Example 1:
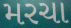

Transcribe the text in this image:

મરચા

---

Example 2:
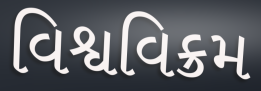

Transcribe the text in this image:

વિશ્વવિક્રમ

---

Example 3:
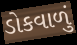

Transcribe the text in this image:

ડોકવાળું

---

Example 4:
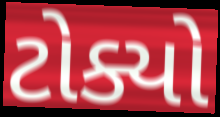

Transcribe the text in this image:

ટોક્યો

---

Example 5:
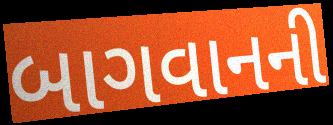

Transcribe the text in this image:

બાગવાનની